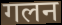
गलन